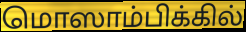
மொஸாம்பிக்கில்